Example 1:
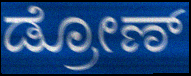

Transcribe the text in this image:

ಡ್ರೋಣ್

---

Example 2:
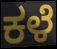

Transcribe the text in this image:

ಕಳೆ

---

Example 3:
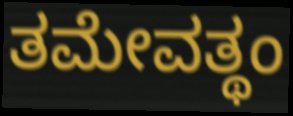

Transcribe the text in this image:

ತಮೇವತ್ಥಂ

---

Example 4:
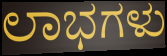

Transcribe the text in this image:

ಲಾಭಗಳು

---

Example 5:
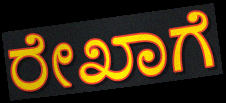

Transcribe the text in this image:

ರೇಖಾಗೆ